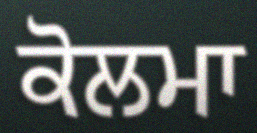
ਕੋਲਮਾ